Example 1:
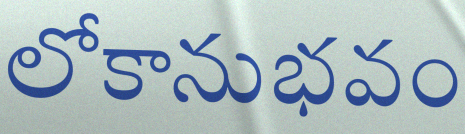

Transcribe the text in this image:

లోకానుభవం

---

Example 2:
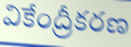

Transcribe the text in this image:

వికేంద్రీకరణ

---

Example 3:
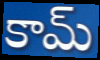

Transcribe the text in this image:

కామ్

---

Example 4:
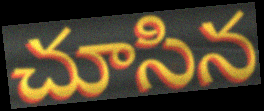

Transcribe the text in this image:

చూసిన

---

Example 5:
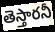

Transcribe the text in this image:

తెస్తారనీ